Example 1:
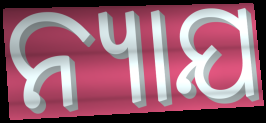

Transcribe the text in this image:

ନ୍ୟାଯ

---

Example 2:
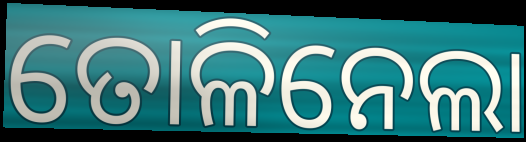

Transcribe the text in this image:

ତୋଳିନେଲା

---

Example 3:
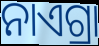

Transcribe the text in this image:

ନାଏଗ୍ରା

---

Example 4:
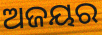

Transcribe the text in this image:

ଅଜୟର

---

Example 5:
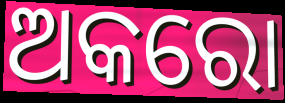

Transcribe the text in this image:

ଅକରୋ